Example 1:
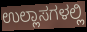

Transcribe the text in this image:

ಉಲ್ಲಾಸಗಳಲ್ಲಿ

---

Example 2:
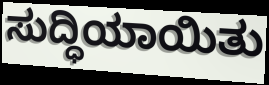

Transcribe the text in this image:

ಸುದ್ಧಿಯಾಯಿತು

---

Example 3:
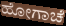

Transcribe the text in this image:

ಹೋಗಾಚೆ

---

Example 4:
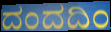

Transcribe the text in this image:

ದಂದದಿಂ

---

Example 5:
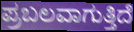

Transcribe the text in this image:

ಪ್ರಬಲವಾಗುತ್ತಿದೆ